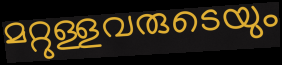
മറ്റുള്ളവരുടെയും